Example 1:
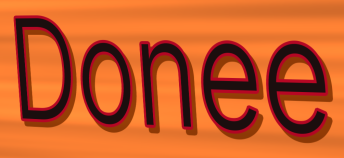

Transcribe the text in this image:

Donee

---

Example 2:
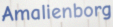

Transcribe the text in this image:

Amalienborg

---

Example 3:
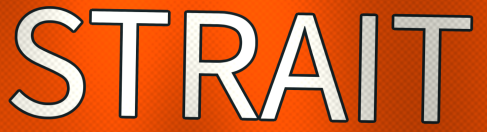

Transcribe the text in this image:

STRAIT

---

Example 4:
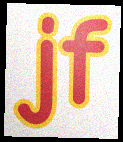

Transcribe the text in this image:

jf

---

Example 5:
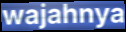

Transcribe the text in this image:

wajahnya